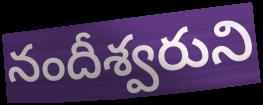
నందీశ్వరుని